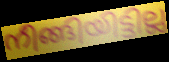
നീങ്ങിയിട്ടില്ല